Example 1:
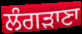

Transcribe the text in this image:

ਲੰਗੜਾਣਾ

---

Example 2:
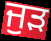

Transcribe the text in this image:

ਜੁੜ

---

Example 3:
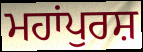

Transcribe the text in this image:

ਮਹਾਂਪੁਰਸ਼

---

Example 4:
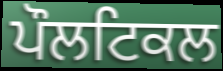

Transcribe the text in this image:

ਪੌਲਟਿਕਲ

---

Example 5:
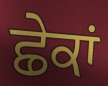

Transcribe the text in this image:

ਛੇਕਾਂ